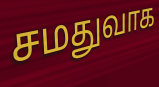
சமதுவாக